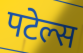
पटेल्स